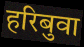
हरिबुवा